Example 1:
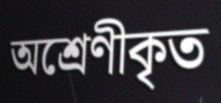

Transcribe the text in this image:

অশ্ৰেণীকৃত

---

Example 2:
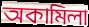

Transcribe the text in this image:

অকামিলা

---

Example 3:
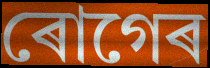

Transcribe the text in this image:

ৰোগেৰ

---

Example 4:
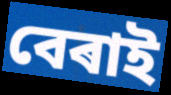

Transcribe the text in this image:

বেৰাই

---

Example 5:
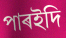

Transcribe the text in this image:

পাৰইদি